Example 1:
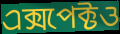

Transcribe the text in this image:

এক্সপেক্টও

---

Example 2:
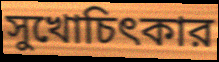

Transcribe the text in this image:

সুখোচিৎকার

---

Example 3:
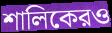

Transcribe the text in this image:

শালিকেরও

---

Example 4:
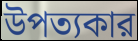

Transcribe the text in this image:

উপত্যকার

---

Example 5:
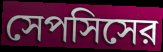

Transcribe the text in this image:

সেপসিসের